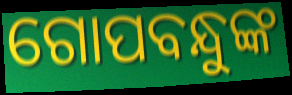
ଗୋପବନ୍ଧୁଙ୍କ